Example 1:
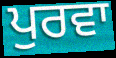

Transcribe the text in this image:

ਪੁਰਵਾ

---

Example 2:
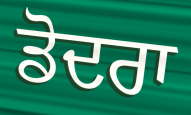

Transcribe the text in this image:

ਡੋਦਰਾ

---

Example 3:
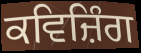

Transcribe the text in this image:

ਕਵਿਜ਼ਿੰਗ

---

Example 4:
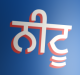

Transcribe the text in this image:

ਨੀਟੂ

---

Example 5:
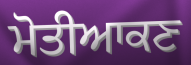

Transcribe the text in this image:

ਮੋਤੀਆਕਣ